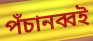
পঁচানব্বই